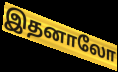
இதனாலோ